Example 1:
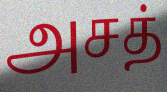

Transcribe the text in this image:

அசத்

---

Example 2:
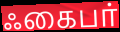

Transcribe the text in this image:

ஃகைபர்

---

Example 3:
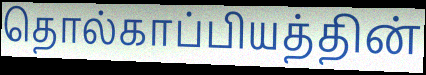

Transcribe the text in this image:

தொல்காப்பியத்தின்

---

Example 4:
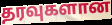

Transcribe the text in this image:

தரவுகளான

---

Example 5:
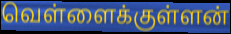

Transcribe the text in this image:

வெள்ளைக்குள்ளன்